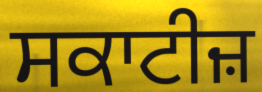
ਸਕਾਟੀਜ਼